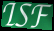
ISF